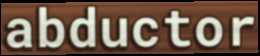
abductor